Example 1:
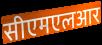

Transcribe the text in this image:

सीएमएलआर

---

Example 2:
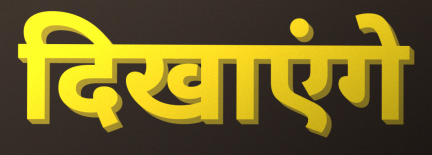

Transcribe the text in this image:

दिखाएंगे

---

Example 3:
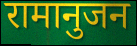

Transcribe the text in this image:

रामानुजन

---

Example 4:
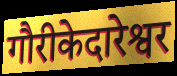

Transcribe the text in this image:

गौरीकेदारेश्वर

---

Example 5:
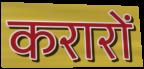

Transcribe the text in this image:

करारों